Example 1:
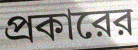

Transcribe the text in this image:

প্রকারের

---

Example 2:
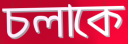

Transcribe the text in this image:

চলাকে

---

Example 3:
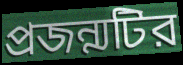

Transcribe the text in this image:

প্রজন্মটির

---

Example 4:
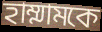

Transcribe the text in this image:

হাম্মামকে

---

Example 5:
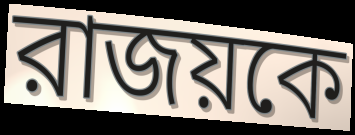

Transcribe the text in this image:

রাজয়কে